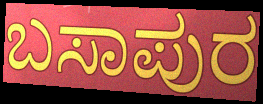
ಬಸಾಪುರ